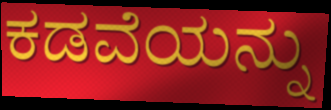
ಕಡವೆಯನ್ನು